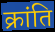
क्रांति